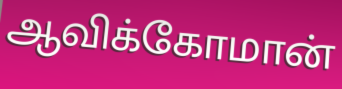
ஆவிக்கோமான்